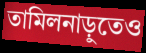
তামিলনাড়ুতেও